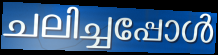
ചലിച്ചപ്പോൾ